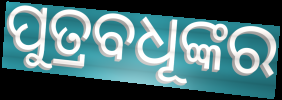
ପୁତ୍ରବଧୂଙ୍କର